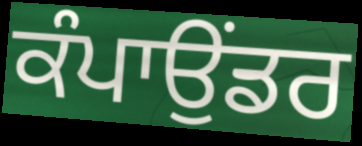
ਕੰਪਾਉਂਡਰ